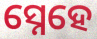
ସ୍ନେହେ